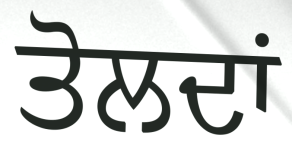
ਤੋਲਦਾਂ